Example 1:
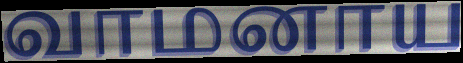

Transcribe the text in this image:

வாமனாய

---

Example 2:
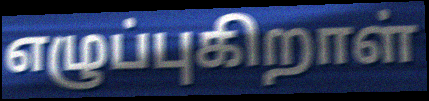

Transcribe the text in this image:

எழுப்புகிறாள்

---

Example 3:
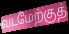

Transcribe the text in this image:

வடமேற்குத்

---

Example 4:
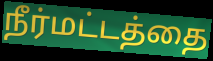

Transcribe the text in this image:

நீர்மட்டத்தை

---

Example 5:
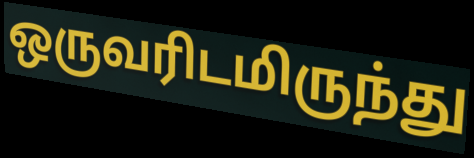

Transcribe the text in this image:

ஒருவரிடமிருந்து